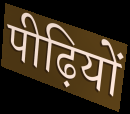
पीढ़ियों